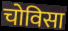
चोविसा